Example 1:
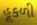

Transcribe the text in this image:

હૂકળી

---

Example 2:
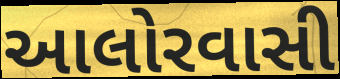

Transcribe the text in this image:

આલોરવાસી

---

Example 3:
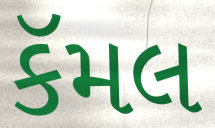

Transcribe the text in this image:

કૅમલ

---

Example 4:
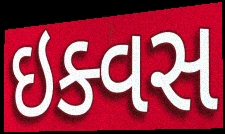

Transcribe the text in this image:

ઇક્વસ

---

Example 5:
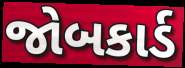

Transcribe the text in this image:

જોબકાર્ડ